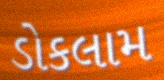
ડોકલામ